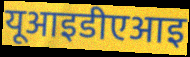
यूआइडीएआइ